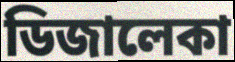
ডিজালেকা